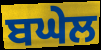
ਬਘੇਲ